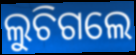
ଲୁଚିଗଲେ